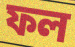
ফল